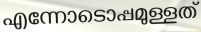
എന്നോടൊപ്പമുള്ളത്